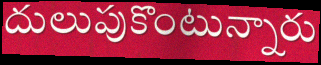
దులుపుకొంటున్నారు